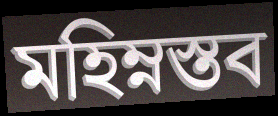
মহিম্নস্তব